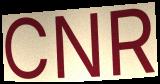
CNR